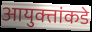
आयुक्तांकडे